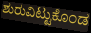
ಶುರುವಿಟ್ಟುಕೊಂಡ